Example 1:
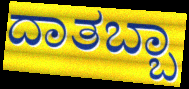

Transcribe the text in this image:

ದಾತಬ್ಬಾ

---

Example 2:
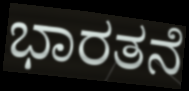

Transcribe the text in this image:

ಭಾರತನೆ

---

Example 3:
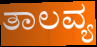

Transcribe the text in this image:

ತಾಲವ್ಯ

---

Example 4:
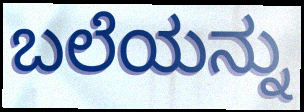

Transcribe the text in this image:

ಬಲೆಯನ್ನು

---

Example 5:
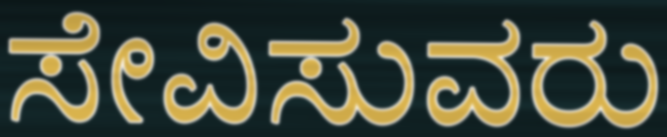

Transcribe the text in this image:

ಸೇವಿಸುವರು